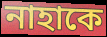
নাহাকে